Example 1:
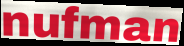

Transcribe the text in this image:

nufman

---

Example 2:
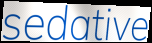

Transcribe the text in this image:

sedative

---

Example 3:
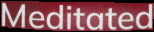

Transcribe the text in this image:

Meditated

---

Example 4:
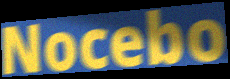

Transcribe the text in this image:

Nocebo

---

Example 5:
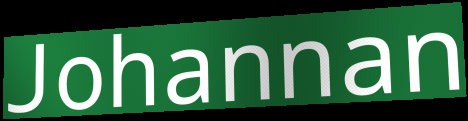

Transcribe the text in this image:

Johannan